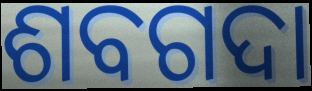
ଶବଗଦା